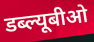
डब्ल्यूबीओ